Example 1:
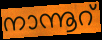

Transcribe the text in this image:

നാന്നൂറ്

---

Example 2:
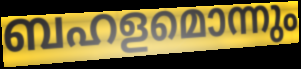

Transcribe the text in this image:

ബഹളമൊന്നും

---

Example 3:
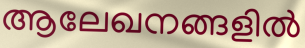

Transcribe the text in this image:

ആലേഖനങ്ങളിൽ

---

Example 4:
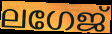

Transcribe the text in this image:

ലഗേജ്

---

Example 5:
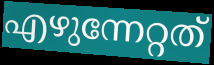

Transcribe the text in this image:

എഴുന്നേറ്റത്